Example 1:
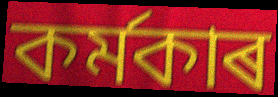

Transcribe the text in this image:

কৰ্মকাৰ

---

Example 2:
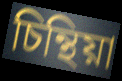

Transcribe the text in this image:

চিন্থিয়া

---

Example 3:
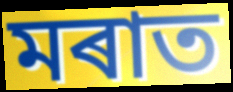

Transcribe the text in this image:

মৰাত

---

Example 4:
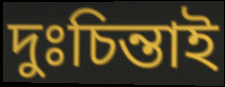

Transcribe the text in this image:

দুঃচিন্তাই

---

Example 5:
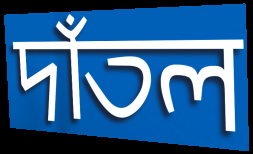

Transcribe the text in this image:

দাঁতল